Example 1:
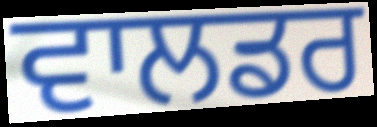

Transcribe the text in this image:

ਵਾਲਡਰ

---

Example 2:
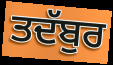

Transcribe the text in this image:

ਤਦੱਬੁਰ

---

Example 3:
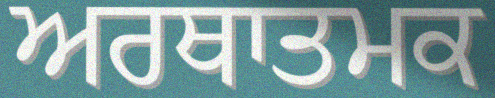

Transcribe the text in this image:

ਅਰਥਾਤਮਕ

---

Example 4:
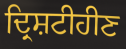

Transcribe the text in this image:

ਦ੍ਰਿਸ਼ਟੀਹੀਣ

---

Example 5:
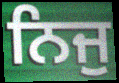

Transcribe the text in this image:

ਨਿਜੁ